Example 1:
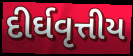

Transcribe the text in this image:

દીર્ઘવૃત્તીય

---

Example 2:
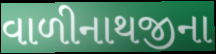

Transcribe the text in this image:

વાળીનાથજીના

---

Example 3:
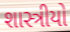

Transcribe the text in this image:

શાસ્ત્રીયો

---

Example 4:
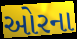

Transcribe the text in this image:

ઓરના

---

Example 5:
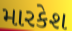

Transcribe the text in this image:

મારકેશ